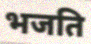
भजति